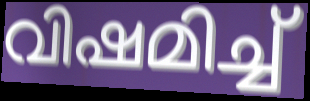
വിഷമിച്ച്